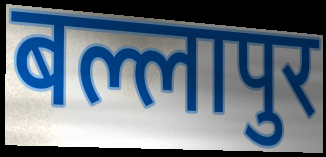
बल्लापुर